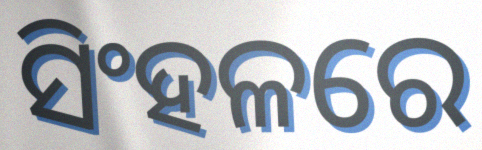
ସିଂହଳରେ